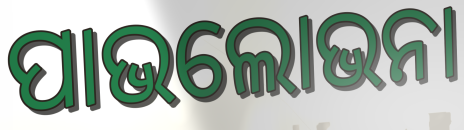
ପାଭଲୋଭନା